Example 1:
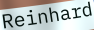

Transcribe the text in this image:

Reinhard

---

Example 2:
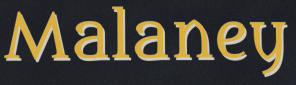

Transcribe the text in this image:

Malaney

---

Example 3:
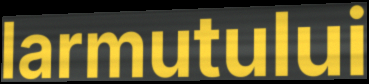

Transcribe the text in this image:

Iarmutului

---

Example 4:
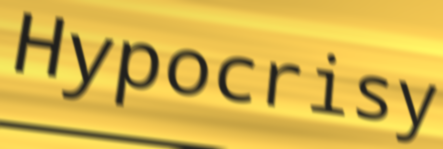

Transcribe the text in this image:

Hypocrisy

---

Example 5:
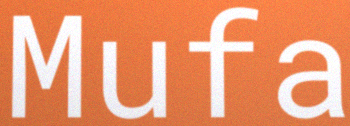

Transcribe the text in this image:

Mufa